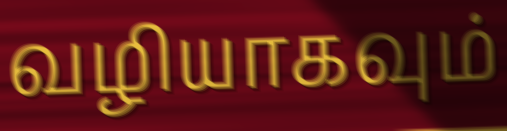
வழியாகவும்